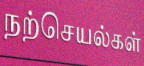
நற்செயல்கள்